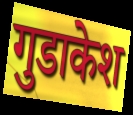
गुडाकेश